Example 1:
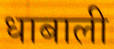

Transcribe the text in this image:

धाबाली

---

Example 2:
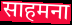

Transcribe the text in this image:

साहमना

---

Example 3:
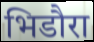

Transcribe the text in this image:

भिडौरा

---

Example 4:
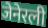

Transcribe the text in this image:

जेनेरली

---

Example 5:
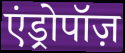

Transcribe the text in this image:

एंड्रोपॉज़